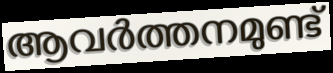
ആവർത്തനമുണ്ട്